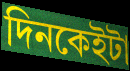
দিনকেইটা